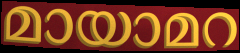
മായാമറ